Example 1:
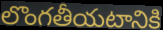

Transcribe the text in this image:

లొంగతీయటానికి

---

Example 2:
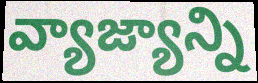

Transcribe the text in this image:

వ్యాజ్యాన్ని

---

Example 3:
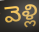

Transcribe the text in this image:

వెళ్లి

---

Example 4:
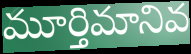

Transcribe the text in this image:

మూర్తిమానివ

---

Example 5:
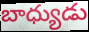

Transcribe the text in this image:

బాధ్యుడు